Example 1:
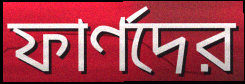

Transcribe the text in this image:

ফার্ণদের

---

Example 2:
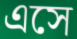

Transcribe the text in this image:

এসে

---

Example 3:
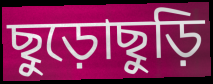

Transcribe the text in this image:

ছুড়োছুড়ি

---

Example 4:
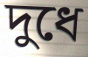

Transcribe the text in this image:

দুধে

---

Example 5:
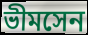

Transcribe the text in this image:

ভীমসেন